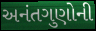
અનંતગુણોની